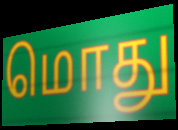
மொது